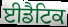
ਈਡੈਟਿਕ